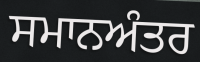
ਸਮਾਨਅੰਤਰ